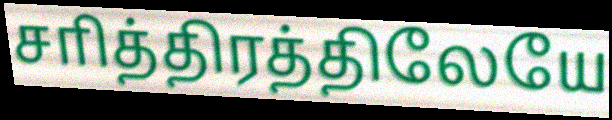
சரித்திரத்திலேயே